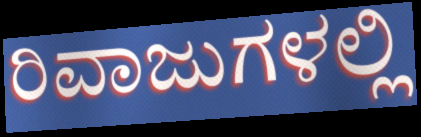
ರಿವಾಜುಗಳಲ್ಲಿ